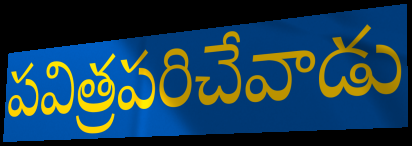
పవిత్రపరిచేవాడు